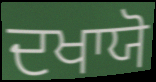
ਦਖਾਯੋ